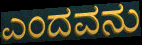
ಎಂದವನು